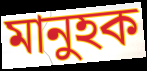
মানুহক